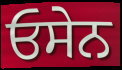
ਓਸੇਨ